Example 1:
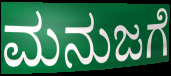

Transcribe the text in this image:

ಮನುಜಗೆ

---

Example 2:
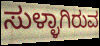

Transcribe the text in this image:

ಸುಳ್ಳಾಗಿರುವ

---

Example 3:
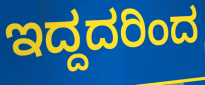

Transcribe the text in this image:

ಇದ್ದದರಿಂದ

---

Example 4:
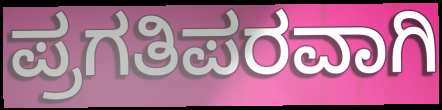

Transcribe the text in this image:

ಪ್ರಗತಿಪರವಾಗಿ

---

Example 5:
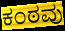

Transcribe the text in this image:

ಕಂಠವು